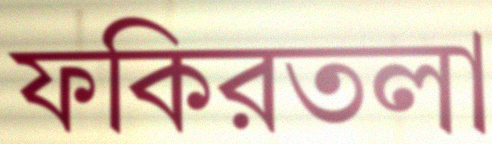
ফকিরতলা